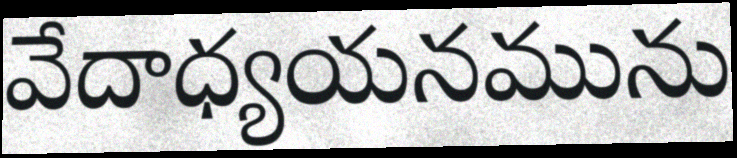
వేదాధ్యయనమును